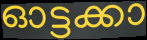
ഓട്ടക്കാ